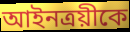
আইনত্রয়ীকে